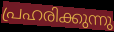
പ്രഹരിക്കുന്നു